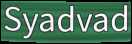
Syadvad